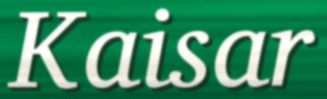
Kaisar